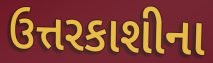
ઉત્તરકાશીના